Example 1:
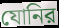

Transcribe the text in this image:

যোনির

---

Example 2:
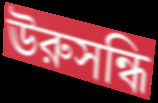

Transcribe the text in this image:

ঊরুসন্ধি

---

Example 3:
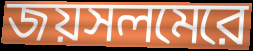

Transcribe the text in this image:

জয়সলমেরে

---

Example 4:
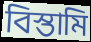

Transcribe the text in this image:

বিস্তামি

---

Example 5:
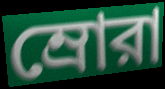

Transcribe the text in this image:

ম্রোরা